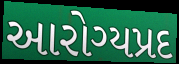
આરોગ્યપ્રદ